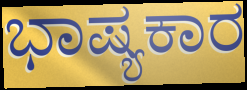
ಭಾಷ್ಯಕಾರ